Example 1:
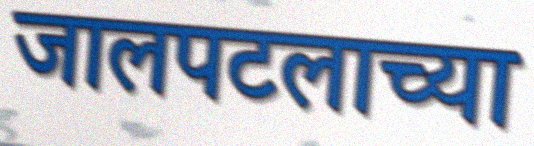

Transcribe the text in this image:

जालपटलाच्या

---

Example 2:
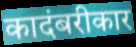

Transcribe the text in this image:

कादंबरीकार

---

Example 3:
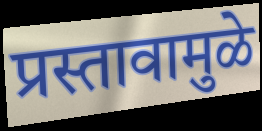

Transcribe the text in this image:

प्रस्तावामुळे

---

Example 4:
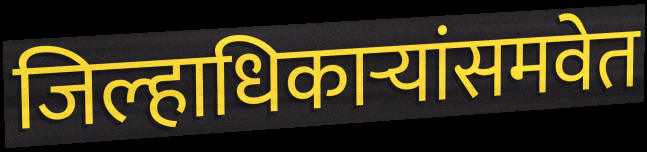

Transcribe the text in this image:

जिल्हाधिकाऱ्यांसमवेत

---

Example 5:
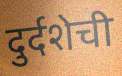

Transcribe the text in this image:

दुर्दशेची